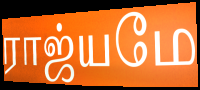
ராஜ்யமே